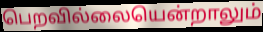
பெறவில்லையென்றாலும்